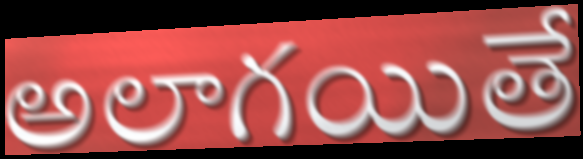
అలాగయితే